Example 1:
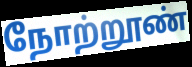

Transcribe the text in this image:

நோற்றூண்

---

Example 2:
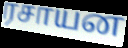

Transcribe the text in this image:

ரசாயன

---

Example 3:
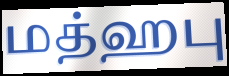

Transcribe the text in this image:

மத்ஹபு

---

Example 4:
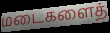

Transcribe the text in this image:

மடைகளைத்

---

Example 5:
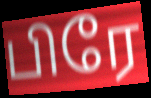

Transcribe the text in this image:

பிரே